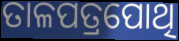
ତାଳପତ୍ରପୋଥି